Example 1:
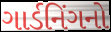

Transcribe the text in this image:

ગાર્ડનિંગનો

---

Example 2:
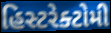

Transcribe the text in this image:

હિસ્ટરેક્ટોમી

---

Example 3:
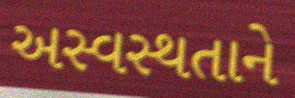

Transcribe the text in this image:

અસ્વસ્થતાને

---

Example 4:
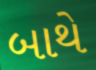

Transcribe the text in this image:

બાથે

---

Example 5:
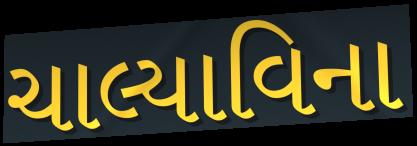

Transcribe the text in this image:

ચાલ્યાવિના